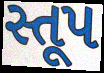
સ્તૂપ